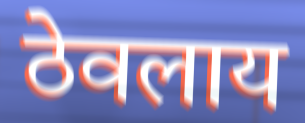
ठेवलाय